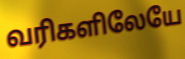
வரிகளிலேயே